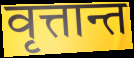
वृत्तान्त